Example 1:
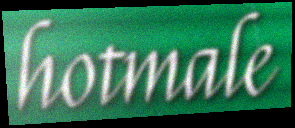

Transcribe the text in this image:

hotmale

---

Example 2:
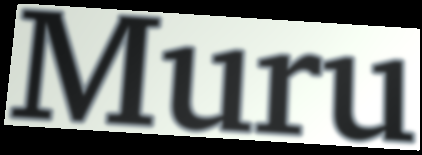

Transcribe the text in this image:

Muru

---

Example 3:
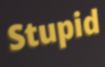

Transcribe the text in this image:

Stupid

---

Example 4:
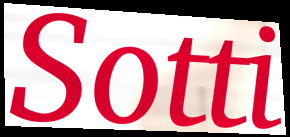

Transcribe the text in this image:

Sotti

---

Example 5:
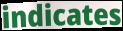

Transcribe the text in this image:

indicates